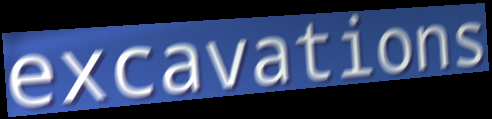
excavations